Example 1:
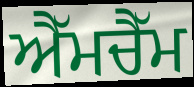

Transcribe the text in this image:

ਐੱਮਚੈੱਮ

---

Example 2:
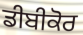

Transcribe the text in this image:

ਡੀਬੀਕੋਰ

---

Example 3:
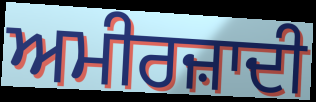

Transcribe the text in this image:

ਅਮੀਰਜ਼ਾਦੀ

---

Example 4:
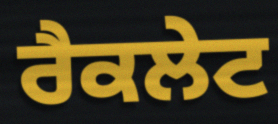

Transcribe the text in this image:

ਰੈਕਲੇਟ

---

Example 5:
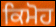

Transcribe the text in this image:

ਕਿਮੋਹ